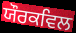
ਯੌਰਕਵਿਲ